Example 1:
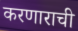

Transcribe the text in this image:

करणाराची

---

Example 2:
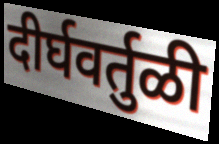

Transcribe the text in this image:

दीर्घवर्तुळी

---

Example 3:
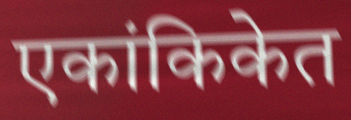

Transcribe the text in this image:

एकांकिकेत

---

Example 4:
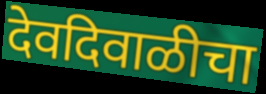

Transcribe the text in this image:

देवदिवाळीचा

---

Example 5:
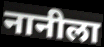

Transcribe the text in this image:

नानीला